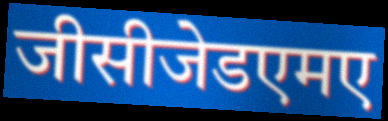
जीसीजेडएमए